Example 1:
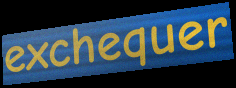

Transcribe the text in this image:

exchequer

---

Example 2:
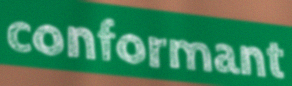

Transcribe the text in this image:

conformant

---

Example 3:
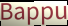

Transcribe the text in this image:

Bappu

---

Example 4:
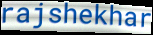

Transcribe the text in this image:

rajshekhar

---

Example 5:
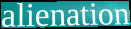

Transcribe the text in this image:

alienation